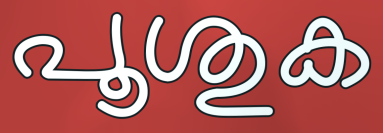
പൂശുക